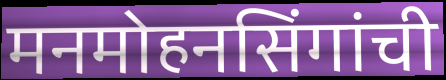
मनमोहनसिंगांची